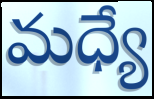
మధ్యే